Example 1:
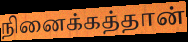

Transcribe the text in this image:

நினைக்கத்தான்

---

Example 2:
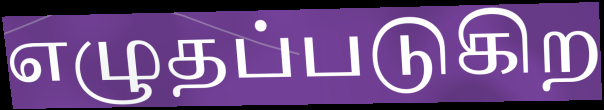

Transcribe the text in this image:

எழுதப்படுகிற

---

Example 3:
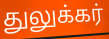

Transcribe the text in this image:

துலுக்கர்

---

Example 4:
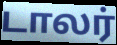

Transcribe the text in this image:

டாலர்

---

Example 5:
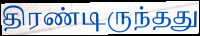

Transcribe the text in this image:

திரண்டிருந்தது